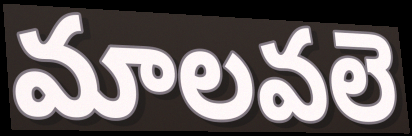
మాలవలె